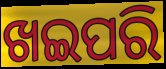
ଖଇପରି